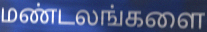
மண்டலங்களை